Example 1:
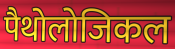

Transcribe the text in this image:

पैथोलोजिकल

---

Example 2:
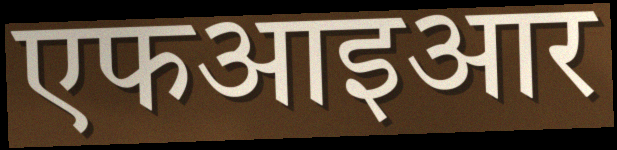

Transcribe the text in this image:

एफआइआर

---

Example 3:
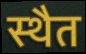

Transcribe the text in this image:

स्थैत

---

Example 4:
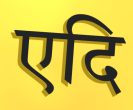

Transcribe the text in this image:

एदि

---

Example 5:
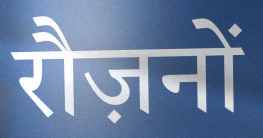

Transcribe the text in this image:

रौज़नों